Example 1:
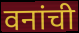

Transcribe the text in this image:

वनांची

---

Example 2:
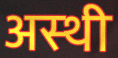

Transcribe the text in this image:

अस्थी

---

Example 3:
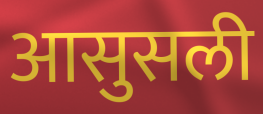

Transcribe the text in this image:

आसुसली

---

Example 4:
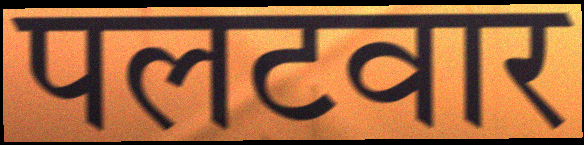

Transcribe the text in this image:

पलटवार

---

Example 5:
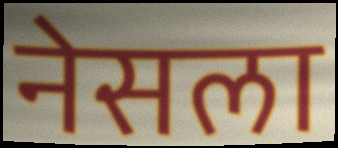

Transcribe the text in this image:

नेसला